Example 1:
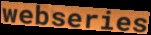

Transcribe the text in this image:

webseries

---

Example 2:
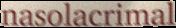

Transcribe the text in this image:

nasolacrimal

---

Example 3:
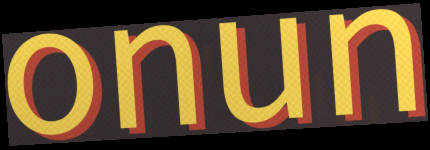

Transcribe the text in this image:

onun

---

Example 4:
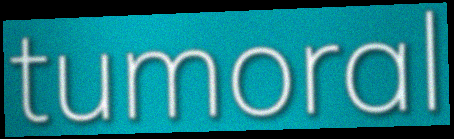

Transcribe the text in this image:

tumoral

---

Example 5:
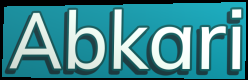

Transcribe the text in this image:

Abkari